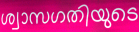
ശ്വാസഗതിയുടെ